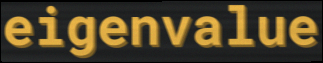
eigenvalue